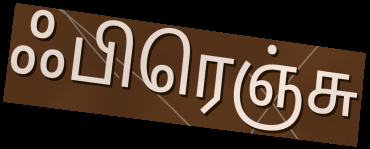
ஃபிரெஞ்சு